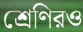
শ্রেণিরও